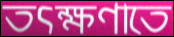
তৎক্ষণাতে